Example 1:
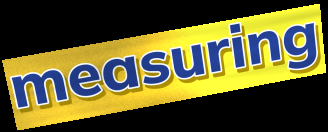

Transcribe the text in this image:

measuring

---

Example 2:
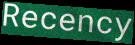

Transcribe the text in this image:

Recency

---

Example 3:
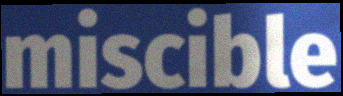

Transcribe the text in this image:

miscible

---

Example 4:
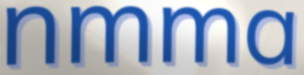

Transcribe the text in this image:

nmma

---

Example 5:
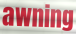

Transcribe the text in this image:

awning